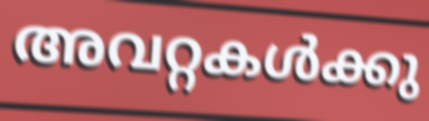
അവറ്റകൾക്കു